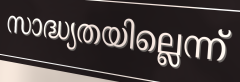
സാദ്ധ്യതയില്ലെന്ന്